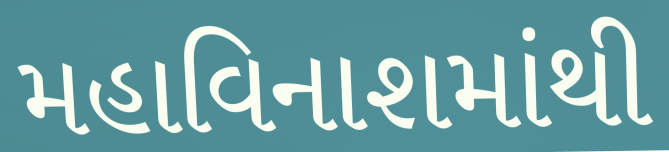
મહાવિનાશમાંથી